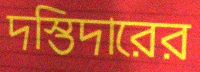
দস্তিদারের